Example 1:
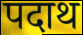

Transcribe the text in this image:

पदाथ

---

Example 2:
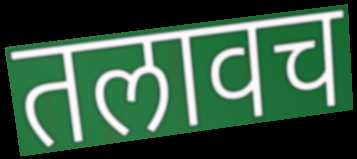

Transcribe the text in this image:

तलावच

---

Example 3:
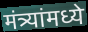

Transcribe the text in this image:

मंत्र्यांमध्ये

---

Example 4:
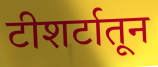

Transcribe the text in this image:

टीशर्टातून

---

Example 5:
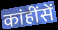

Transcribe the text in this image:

कांहींसें